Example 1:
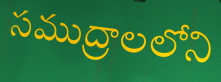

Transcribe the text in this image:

సముద్రాలలోని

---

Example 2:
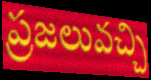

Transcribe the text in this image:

ప్రజలువచ్చి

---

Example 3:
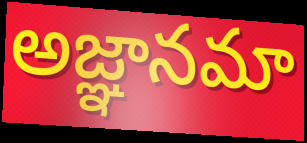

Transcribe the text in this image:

అజ్ఞానమా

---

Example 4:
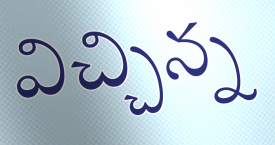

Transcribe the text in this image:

విచ్చిన్న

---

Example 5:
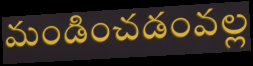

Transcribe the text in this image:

మండించడంవల్ల